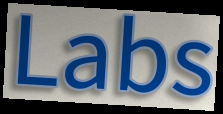
Labs